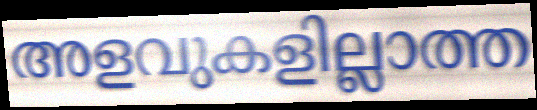
അളവുകളില്ലാത്ത